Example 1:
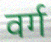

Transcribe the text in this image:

वर्ग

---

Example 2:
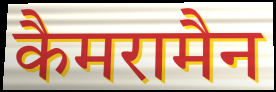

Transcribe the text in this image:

कैमरामैन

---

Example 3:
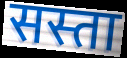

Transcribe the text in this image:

सस्ता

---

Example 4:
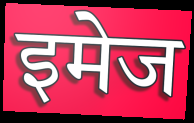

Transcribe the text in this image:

इमेज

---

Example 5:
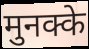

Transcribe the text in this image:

मुनक्के